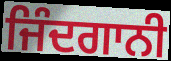
ਜਿੰਦਗਾਨੀ